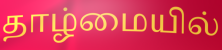
தாழ்மையில்